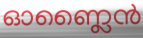
ഓണ്ലൈൻ